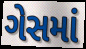
ગેસમાં